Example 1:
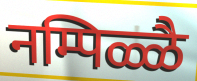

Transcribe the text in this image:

नम्पिळ्ळै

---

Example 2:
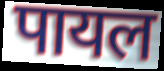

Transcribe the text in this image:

पायल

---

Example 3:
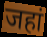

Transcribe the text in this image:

जहां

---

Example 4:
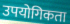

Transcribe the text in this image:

उपयोगिकता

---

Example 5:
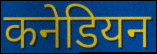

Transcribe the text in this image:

कनेडियन